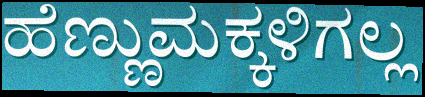
ಹೆಣ್ಣುಮಕ್ಕಳಿಗಲ್ಲ